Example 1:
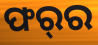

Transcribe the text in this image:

ଫର୍‌ର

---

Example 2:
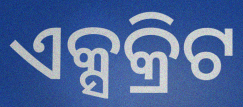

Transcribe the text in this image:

ଏକ୍ସକ୍ରିଟ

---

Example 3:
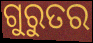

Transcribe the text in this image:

ଗୁରୁତର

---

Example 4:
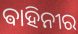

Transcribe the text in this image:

ଵାହିନୀର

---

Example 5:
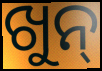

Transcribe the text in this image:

ଖୁନ୍